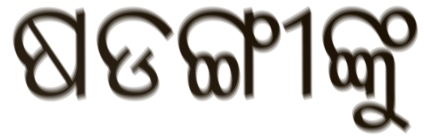
ଷଡଙ୍ଗୀଙ୍କୁ